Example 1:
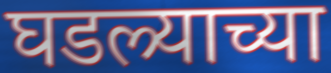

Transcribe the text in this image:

घडल्याच्या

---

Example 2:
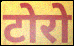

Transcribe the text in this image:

टोरो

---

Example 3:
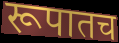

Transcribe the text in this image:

रूपातच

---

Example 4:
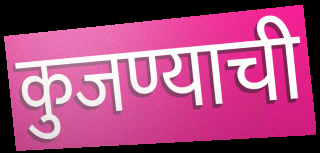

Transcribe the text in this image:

कुजण्याची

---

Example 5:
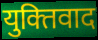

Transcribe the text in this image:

युक्‍तिवाद